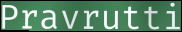
Pravrutti